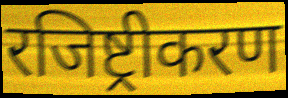
रजिष्ट्रीकरण